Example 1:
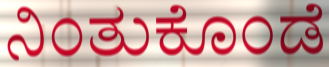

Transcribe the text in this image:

ನಿಂತುಕೊಂಡೆ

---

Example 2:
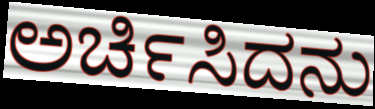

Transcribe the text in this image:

ಅರ್ಚಿಸಿದನು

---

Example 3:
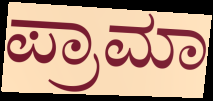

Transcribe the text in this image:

ಪ್ರಾಮಾ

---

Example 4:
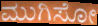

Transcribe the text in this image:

ಮುಗಿಸೋ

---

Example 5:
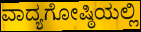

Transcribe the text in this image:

ವಾದ್ಯಗೋಷ್ಠಿಯಲ್ಲಿ